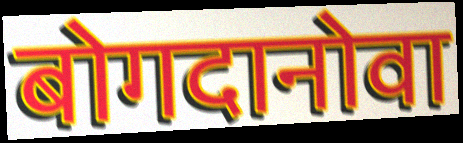
बोगदानोवा